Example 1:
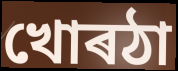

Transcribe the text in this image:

খোৰঠা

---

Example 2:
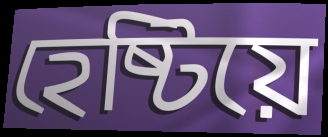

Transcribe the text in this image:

হেষ্টিয়ে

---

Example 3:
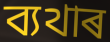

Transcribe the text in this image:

ব্যথাৰ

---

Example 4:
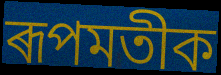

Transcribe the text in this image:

ৰূপমতীক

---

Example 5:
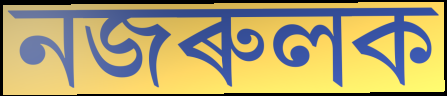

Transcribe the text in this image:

নজৰুলক